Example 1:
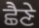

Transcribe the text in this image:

ਛੈਣੇ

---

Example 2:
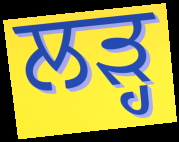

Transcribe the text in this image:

ਲੜ੍ਹ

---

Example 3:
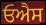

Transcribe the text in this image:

ਓਐਸ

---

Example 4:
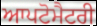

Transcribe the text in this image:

ਆਪਟੋਮੈਟਰੀ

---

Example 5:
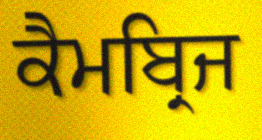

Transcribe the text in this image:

ਕੈਮਬ੍ਰਿਜ